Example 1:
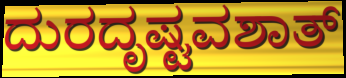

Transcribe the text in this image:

ದುರದೃಷ್ಟವಶಾತ್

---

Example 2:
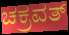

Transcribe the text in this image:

ಚಕ್ರವತ್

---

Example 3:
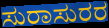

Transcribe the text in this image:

ಸುರಾಸುರರ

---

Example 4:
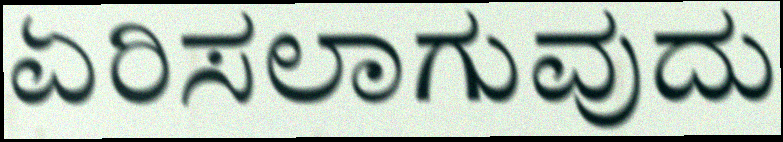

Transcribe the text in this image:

ಏರಿಸಲಾಗುವುದು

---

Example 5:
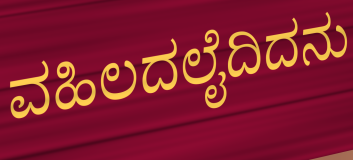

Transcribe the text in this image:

ವಹಿಲದಲೈದಿದನು